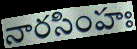
నారసింహః